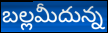
బల్లమీదున్న